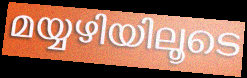
മയ്യഴിയിലൂടെ